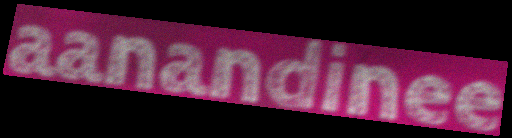
aanandinee